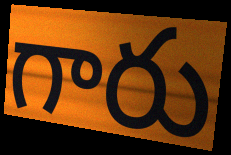
గారు